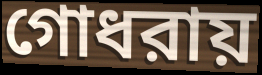
গোধরায়